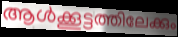
ആൾക്കൂട്ടത്തിലേക്കും